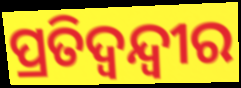
ପ୍ରତିଦ୍ବନ୍ଦ୍ବୀର